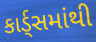
કાર્ડ્સમાંથી